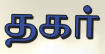
தகர்